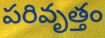
పరివృత్తం